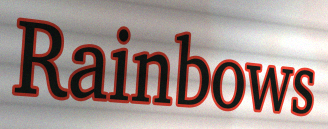
Rainbows